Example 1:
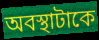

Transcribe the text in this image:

অবস্থাটাকে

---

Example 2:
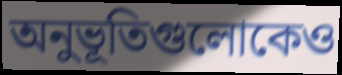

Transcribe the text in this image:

অনুভূতিগুলোকেও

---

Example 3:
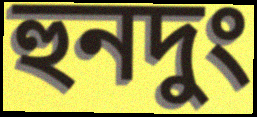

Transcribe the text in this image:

হুনদুং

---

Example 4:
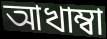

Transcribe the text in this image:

আখাম্বা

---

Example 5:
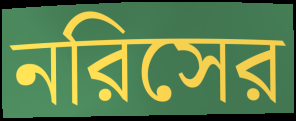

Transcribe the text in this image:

নরিসের